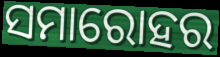
ସମାରୋହର